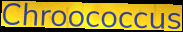
Chroococcus